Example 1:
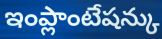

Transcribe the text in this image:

ఇంప్లాంటేషన్కు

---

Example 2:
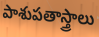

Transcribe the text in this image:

పాశుపతాస్త్రాలు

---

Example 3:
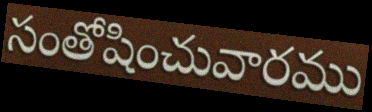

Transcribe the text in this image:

సంతోషించువారము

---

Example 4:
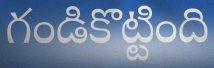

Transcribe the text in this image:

గండికొట్టింది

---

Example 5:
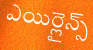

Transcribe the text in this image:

ఎయిర్లైన్స్